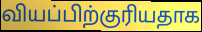
வியப்பிற்குரியதாக